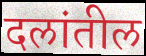
दलांतील